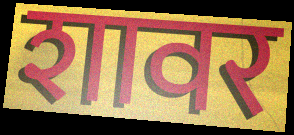
शावर